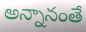
అన్నానంతే